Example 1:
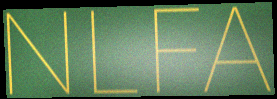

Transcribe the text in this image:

NLFA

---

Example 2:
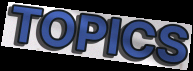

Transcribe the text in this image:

TOPICS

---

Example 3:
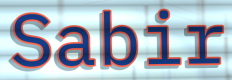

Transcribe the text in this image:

Sabir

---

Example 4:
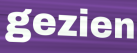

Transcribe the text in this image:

gezien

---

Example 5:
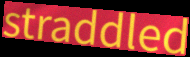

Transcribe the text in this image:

straddled